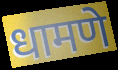
धामणे